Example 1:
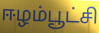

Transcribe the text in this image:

ஈழம்பூட்சி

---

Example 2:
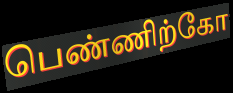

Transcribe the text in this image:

பெண்ணிற்கோ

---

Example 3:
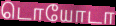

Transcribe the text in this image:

டொயோடா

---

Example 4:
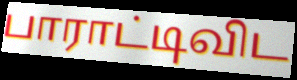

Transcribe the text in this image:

பாராட்டிவிட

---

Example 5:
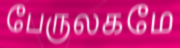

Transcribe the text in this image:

பேருலகமே